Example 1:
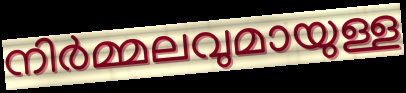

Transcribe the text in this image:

നിർമ്മലവുമായുള്ള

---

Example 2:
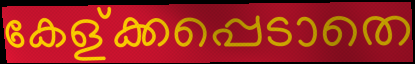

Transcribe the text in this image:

കേള്ക്കപ്പെടാതെ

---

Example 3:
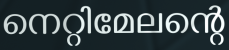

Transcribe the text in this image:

നെറ്റിമേലന്റെ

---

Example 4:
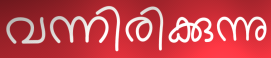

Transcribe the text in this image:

വന്നിരിക്കുന്നു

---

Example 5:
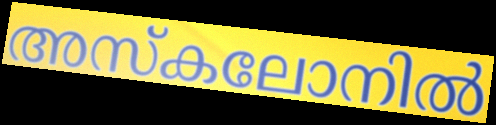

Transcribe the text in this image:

അസ്കലോനിൽ